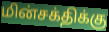
மின்சக்திக்கு